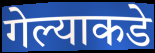
गेल्याकडे